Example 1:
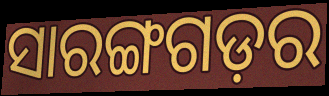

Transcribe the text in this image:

ସାରଙ୍ଗଗଡ଼ର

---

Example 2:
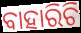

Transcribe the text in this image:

ବାହାରିଚି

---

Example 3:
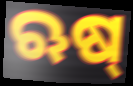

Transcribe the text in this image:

ଋଷ୍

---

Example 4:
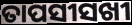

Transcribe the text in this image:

ତାପସୀସଖୀ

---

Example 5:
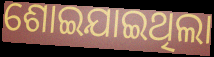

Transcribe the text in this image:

ଶୋଇଯାଇଥିଲା